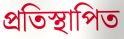
প্রতিস্থাপিত